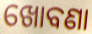
ଖୋବଣା